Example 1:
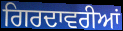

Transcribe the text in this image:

ਗਿਰਦਾਵਰੀਆਂ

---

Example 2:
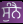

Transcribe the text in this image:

ਸੁੰਨੈ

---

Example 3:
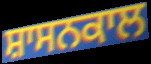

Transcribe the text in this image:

ਸ਼ਾਸਨਕਾਲ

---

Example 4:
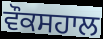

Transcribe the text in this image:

ਵੌਕਸਹਾਲ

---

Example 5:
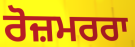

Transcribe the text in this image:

ਰੋਜ਼ਮਰਰਾ